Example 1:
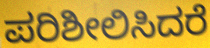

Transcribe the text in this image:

ಪರಿಶೀಲಿಸಿದರೆ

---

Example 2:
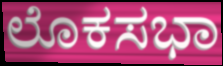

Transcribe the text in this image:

ಲೊಕಸಭಾ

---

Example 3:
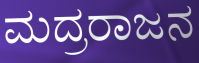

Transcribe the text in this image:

ಮದ್ರರಾಜನ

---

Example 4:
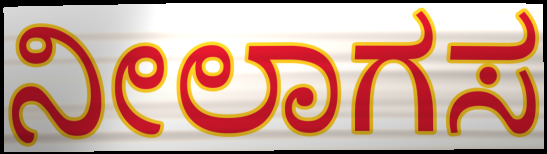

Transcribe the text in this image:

ನೀಲಾಗಸ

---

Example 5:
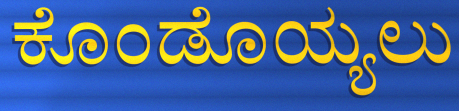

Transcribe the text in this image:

ಕೊಂಡೊಯ್ಯಲು